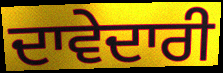
ਦਾਵੇਦਾਰੀ